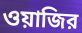
ওয়াজির